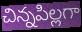
చిన్నపిల్లగా